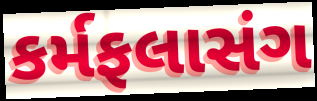
કર્મફલાસંગ